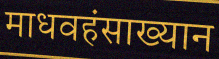
माधवहंसाख्यान